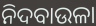
ନିଦବାଉଳା